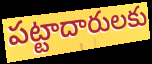
పట్టాదారులకు